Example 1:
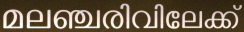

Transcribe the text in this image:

മലഞ്ചരിവിലേക്ക്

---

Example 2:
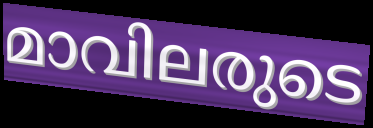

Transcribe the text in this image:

മാവിലരുടെ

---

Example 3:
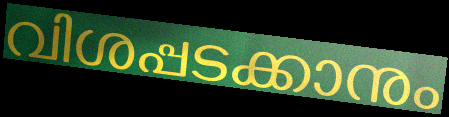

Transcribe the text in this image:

വിശപ്പടക്കാനും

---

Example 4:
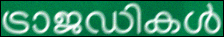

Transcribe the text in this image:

ട്രാജഡികൾ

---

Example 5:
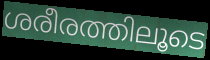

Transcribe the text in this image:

ശരീരത്തിലൂടെ